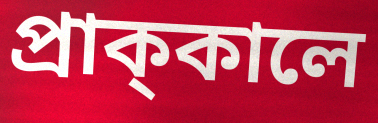
প্রাক্‌কালে